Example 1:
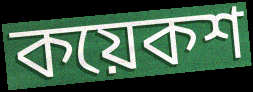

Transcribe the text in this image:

কয়েকশ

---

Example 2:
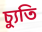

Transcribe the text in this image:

চ্যুতি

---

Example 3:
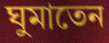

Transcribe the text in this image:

ঘুমাতেন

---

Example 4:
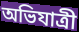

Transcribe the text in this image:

অভিযাত্রী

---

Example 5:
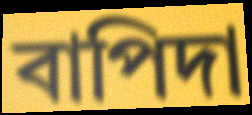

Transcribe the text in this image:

বাপিদা